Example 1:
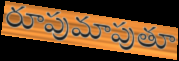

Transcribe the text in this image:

రూపుమాపుతూ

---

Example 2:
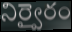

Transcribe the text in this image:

నిర్వైరం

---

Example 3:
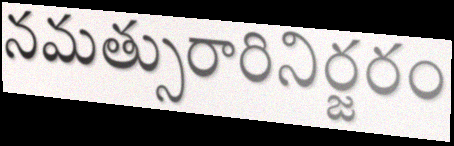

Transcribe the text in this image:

నమత్సురారినిర్జరం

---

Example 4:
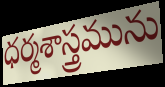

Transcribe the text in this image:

ధర్మశాస్త్రమును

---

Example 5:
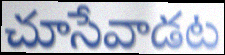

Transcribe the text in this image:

చూసేవాడట